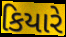
કિયારે